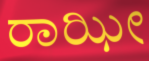
ರಾಝೀ